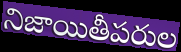
నిజాయితీపరుల